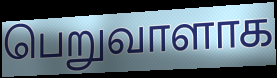
பெறுவாளாக